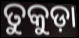
ତୁକୁଡ଼ା